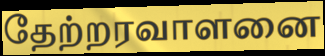
தேற்றரவாளனை